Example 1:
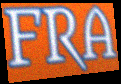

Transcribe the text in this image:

FRA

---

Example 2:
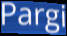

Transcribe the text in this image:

Pargi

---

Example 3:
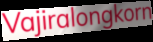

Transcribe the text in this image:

Vajiralongkorn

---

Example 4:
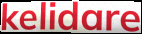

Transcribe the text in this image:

kelidare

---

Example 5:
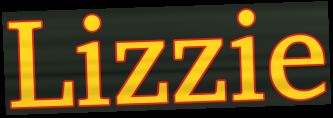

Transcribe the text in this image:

Lizzie